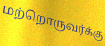
மற்றொருவர்க்கு